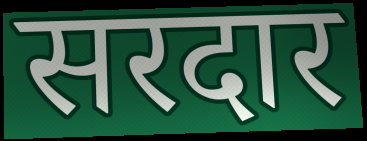
सरदार